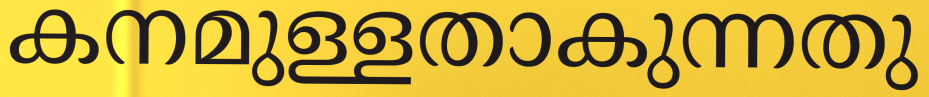
കനമുള്ളതാകുന്നതു